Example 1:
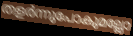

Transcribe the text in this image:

തളർന്നുപോകുമല്ലോ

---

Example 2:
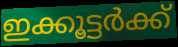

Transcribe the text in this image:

ഇക്കൂട്ടർക്ക്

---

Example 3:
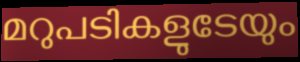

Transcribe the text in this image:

മറുപടികളുടേയും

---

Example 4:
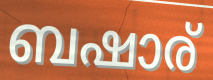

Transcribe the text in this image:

ബഷാര്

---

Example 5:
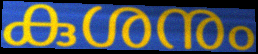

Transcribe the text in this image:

കുശനും